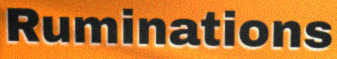
Ruminations